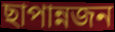
ছাপান্নজন